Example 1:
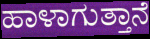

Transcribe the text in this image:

ಹಾಳಾಗುತ್ತಾನೆ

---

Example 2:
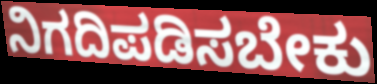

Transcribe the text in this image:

ನಿಗದಿಪಡಿಸಬೇಕು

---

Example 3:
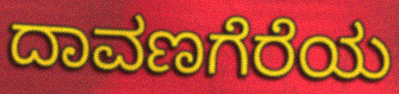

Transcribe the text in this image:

ದಾವಣಗೆರೆಯ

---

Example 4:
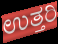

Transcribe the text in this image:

ಉತ್ತರಿ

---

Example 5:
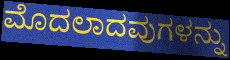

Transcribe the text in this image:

ಮೊದಲಾದವುಗಳನ್ನು